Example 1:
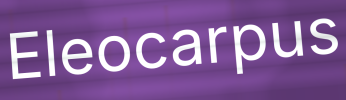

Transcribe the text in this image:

Eleocarpus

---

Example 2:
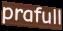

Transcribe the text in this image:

prafull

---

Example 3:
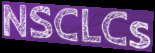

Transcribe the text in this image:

NSCLCs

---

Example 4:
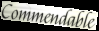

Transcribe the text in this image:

Commendable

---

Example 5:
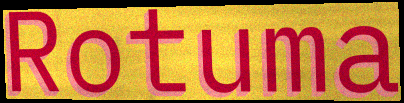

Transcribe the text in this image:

Rotuma